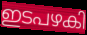
ഇടപഴകി